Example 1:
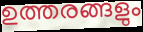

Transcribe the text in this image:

ഉത്തരങ്ങളും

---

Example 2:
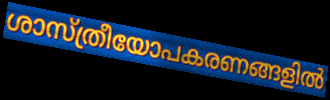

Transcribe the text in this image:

ശാസ്ത്രീയോപകരണങ്ങളിൽ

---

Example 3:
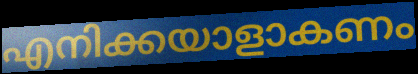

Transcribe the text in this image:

എനിക്കയാളാകണം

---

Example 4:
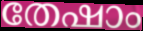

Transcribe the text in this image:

തേഷാം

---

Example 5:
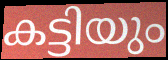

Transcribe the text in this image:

കട്ടിയും